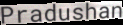
Pradushan